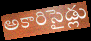
అకారిసైడ్లు